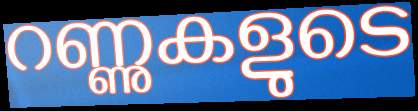
റണ്ണുകളുടെ